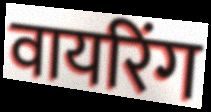
वायरिंग